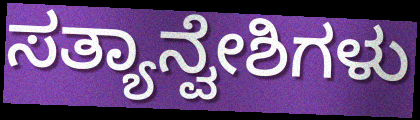
ಸತ್ಯಾನ್ವೇಶಿಗಳು